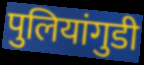
पुलियांगुडी